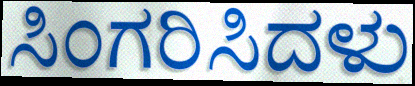
ಸಿಂಗರಿಸಿದಳು